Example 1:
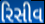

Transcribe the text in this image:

રિસીવ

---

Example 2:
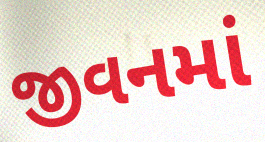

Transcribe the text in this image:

જીવનમાં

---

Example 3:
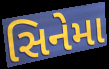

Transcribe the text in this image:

સિનેમા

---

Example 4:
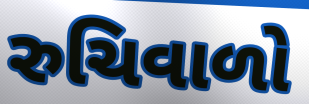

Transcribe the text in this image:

રુચિવાળો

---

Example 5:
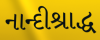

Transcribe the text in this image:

નાન્દીશ્રાદ્ધ